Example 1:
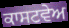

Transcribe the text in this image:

ਕਾਸਟਵੇਅ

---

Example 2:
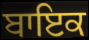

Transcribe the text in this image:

ਬਾਇਕ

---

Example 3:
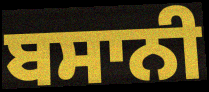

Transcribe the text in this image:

ਬਸਾਨੀ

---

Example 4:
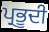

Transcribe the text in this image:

ਪ੍ਰਭੂਦੀ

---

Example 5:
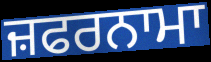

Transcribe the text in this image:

ਜ਼ਫਰਨਾਮਾ